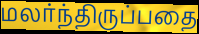
மலர்ந்திருப்பதை